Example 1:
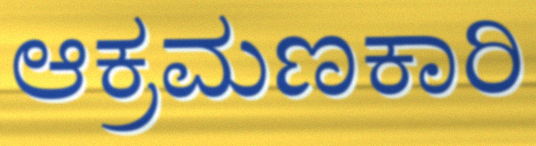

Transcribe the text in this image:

ಆಕ್ರಮಣಕಾರಿ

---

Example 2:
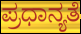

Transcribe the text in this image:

ಪ್ರಧಾನ್ಯತೆ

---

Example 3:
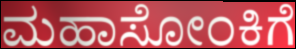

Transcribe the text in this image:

ಮಹಾಸೋಂಕಿಗೆ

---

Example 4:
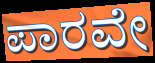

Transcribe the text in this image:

ಪಾರವೇ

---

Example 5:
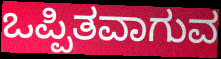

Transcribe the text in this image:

ಒಪ್ಪಿತವಾಗುವ